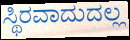
ಸ್ಥಿರವಾದುದಲ್ಲ